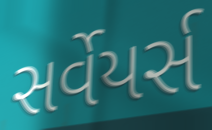
સર્વેયર્સ